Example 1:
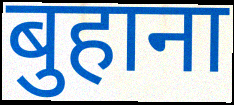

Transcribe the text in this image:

बुहाना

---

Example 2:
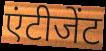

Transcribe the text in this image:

एंटीजेंट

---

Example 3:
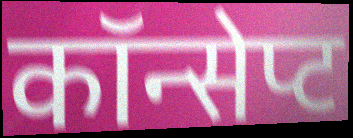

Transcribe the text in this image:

कॉन्सेप्ट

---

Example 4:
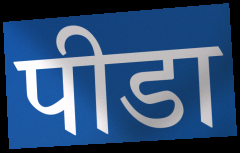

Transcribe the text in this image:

पीडा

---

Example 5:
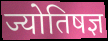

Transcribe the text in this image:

ज्योतिषज्ञ